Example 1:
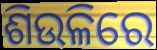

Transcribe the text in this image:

ଶିଉଳିରେ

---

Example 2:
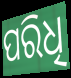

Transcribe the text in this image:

ପରିଧି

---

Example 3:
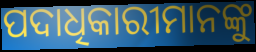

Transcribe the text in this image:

ପଦାଧିକାରୀମାନଙ୍କୁ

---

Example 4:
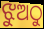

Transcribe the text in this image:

ଝୁଅଠୁ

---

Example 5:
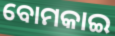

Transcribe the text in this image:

ବୋମକାଇ